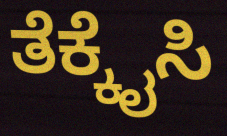
ತೆಕ್ಕೈಸಿ